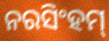
ନରସିଂହମ୍